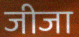
जीजा